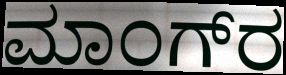
ಮಾಂಗ್‌ರ